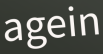
agein